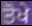
ਤੋਖੇ